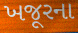
ખજૂરના